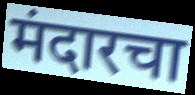
मंदारचा